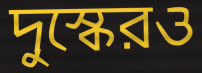
দুস্কেরও